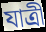
যাত্ৰী